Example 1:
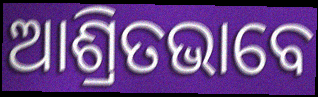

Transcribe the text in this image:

ଆଶ୍ରିତଭାବେ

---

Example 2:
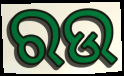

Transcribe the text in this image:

ରଉ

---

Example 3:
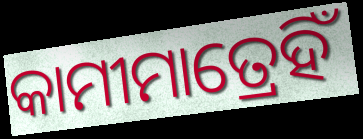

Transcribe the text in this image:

କାମୀମାତ୍ରେହିଁ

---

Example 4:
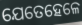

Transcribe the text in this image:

ଯେତେହେଳେ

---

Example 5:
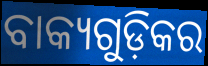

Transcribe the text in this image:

ବାକ୍ୟଗୁଡ଼ିକର